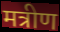
मत्रीण